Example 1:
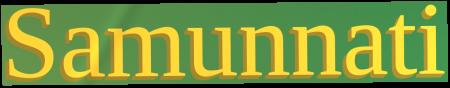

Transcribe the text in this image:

Samunnati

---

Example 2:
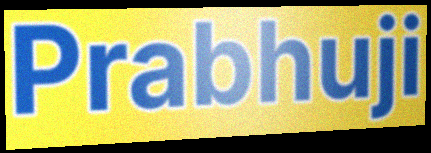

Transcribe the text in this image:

Prabhuji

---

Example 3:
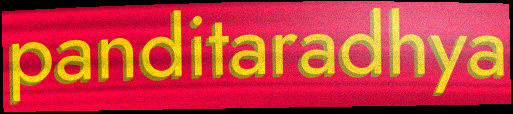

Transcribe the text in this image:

panditaradhya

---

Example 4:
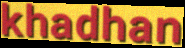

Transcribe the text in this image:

khadhan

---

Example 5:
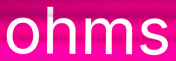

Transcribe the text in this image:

ohms